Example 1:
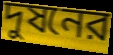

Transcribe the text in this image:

দুষনের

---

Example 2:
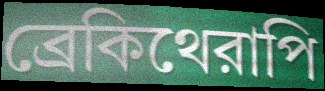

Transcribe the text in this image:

ব্রেকিথেরাপি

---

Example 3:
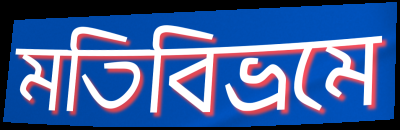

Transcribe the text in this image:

মতিবিভ্রমে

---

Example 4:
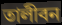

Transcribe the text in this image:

তালীবন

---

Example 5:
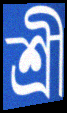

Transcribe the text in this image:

শ্রী